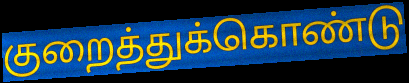
குறைத்துக்கொண்டு